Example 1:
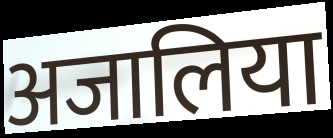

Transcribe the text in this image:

अजालिया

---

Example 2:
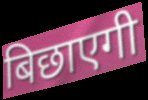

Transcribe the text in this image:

बिछाएगी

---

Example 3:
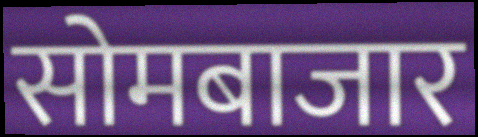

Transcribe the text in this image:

सोमबाजार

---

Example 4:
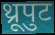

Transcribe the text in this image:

थ्रूपुट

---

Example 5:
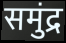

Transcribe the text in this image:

समुंद्र